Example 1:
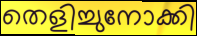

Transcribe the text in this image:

തെളിച്ചുനോക്കി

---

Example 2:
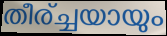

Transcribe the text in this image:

തീര്ച്ചയായും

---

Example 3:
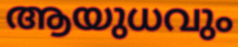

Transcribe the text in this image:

ആയുധവും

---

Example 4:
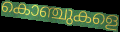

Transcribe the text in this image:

കൊഞ്ചുകളെ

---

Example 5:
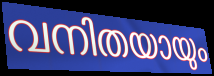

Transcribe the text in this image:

വനിതയായും